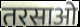
तरसाओ